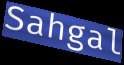
Sahgal